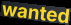
wanted